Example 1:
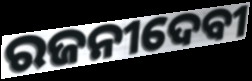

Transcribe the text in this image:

ରଜନୀଦେବୀ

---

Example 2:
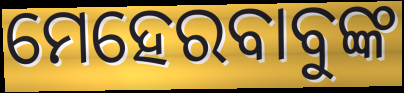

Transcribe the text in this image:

ମେହେରବାବୁଙ୍କ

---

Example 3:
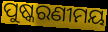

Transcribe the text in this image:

ପୁଷ୍କରଣୀମୟ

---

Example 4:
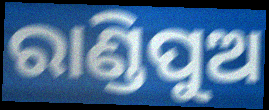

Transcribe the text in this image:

ରାଣ୍ଡିପୁଅ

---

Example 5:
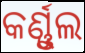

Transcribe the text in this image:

କର୍ଣ୍ଣୁଲ